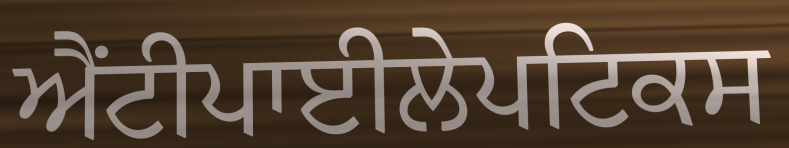
ਐਂਟੀਪਾਈਲੇਪਟਿਕਸ